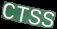
CTSS